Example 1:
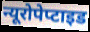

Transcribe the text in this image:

न्यूरोपेप्टाइड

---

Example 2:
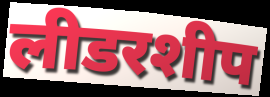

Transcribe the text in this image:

लीडरशीप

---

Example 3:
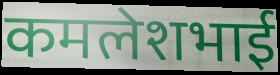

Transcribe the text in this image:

कमलेशभाई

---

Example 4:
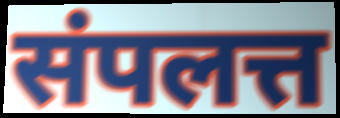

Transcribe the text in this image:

संपलत्त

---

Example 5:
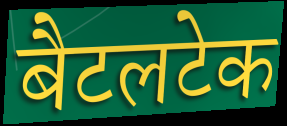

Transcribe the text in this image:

बैटलटेक